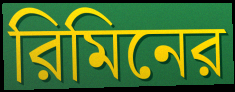
রিমিনের